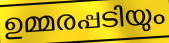
ഉമ്മരപ്പടിയും